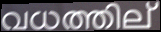
വധത്തില്